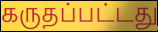
கருதப்பட்டது